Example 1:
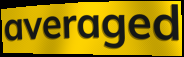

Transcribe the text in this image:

averaged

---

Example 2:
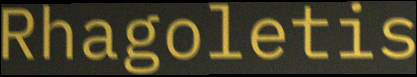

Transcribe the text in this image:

Rhagoletis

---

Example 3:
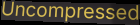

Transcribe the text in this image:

Uncompressed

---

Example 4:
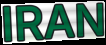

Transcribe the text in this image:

IRAN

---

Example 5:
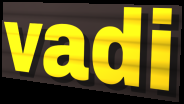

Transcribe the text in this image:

vadi